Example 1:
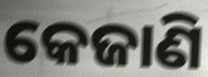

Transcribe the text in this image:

କେଜାଣି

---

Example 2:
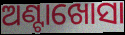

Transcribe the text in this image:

ଅଣ୍ଟାଖୋସା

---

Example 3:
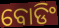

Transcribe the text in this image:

ବୋଡିଂ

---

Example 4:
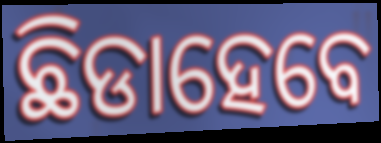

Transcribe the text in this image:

ଛିଡାହେବେ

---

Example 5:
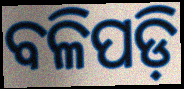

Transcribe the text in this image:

ବଳିପଡ଼ି